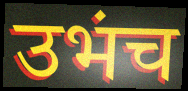
उभंच